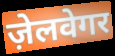
ज़ेलवेगर